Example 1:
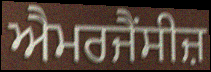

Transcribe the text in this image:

ਐਮਰਜੈਂਸੀਜ਼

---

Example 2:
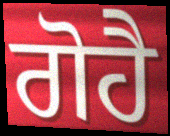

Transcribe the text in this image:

ਗੋਹੈ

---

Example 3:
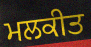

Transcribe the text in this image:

ਮਲਕੀਤ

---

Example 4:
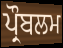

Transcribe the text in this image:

ਪ੍ਰੌਬਲਮ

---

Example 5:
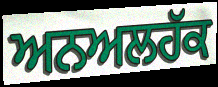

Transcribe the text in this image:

ਅਨਅਲਹੱਕ